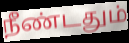
நீண்டதும்